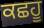
ਕਛਹੂ